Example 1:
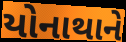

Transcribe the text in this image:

યોનાથાને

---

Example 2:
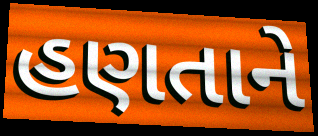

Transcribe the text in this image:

હણતાને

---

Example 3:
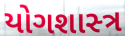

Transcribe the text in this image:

યોગશાસ્‍ત્ર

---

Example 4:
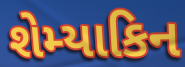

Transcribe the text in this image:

શેમ્યાકિન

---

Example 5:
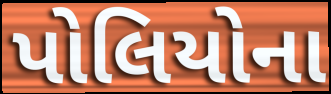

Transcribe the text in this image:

પોલિયોના